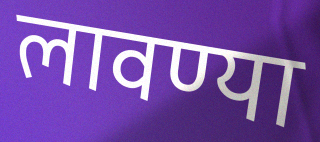
लावण्या